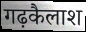
गढ़कैलाश